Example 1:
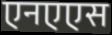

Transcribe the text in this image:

एनएएस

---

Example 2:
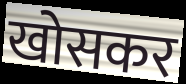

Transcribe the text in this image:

खोसकर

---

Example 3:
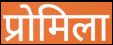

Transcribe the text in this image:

प्रोमिला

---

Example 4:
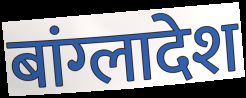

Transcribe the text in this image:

बांग्‍लादेश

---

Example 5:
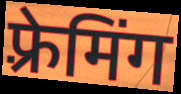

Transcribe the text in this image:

फ़्रेमिंग